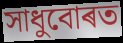
সাধুবোৰত